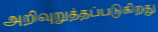
அறிவுறுத்தப்படுகிறது